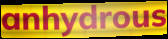
anhydrous